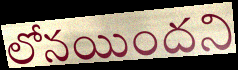
లోనయిందని